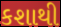
કશાથી